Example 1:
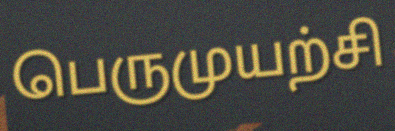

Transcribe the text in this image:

பெருமுயற்சி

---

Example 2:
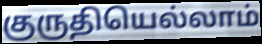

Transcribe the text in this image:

குருதியெல்லாம்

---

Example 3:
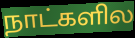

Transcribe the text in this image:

நாட்களில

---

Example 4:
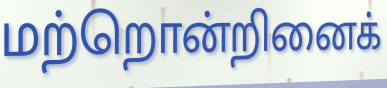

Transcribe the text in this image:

மற்றொன்றினைக்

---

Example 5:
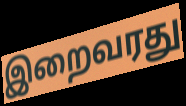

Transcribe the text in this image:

இறைவரது